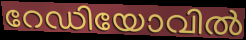
റേഡിയോവിൽ